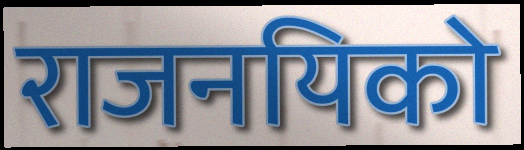
राजनयिको